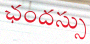
ఛందస్సు